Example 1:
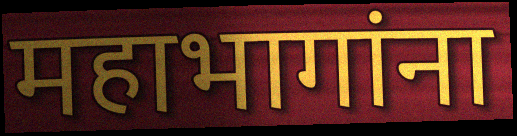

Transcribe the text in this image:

महाभागांना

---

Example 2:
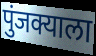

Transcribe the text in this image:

पुंजक्याला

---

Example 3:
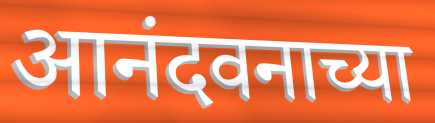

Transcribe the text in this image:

आनंदवनाच्या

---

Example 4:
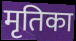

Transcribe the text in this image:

मृतिका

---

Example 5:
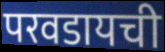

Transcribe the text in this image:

परवडायची